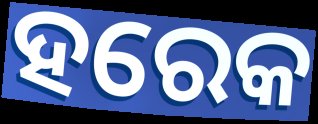
ହରେକ